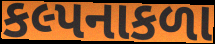
કલ્પનાકળા